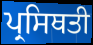
ਪ੍ਰਸਿਥਤੀ